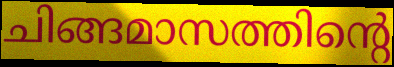
ചിങ്ങമാസത്തിന്റെ